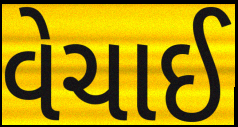
વેચાઈ